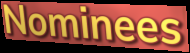
Nominees